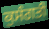
ਕੁਸੰਗਤੀ